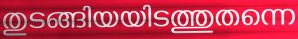
തുടങ്ങിയയിടത്തുതന്നെ